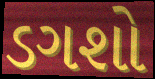
ડગશો